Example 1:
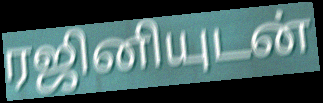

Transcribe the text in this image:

ரஜினியுடன்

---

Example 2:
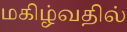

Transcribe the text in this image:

மகிழ்வதில்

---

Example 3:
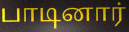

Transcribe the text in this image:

பாடினார்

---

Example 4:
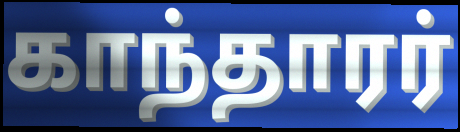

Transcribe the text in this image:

காந்தாரர்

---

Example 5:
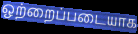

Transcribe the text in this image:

ஒற்றைப்படையாக